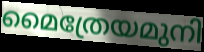
മൈത്രേയമുനി